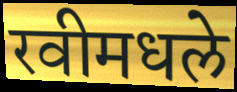
रवीमधले